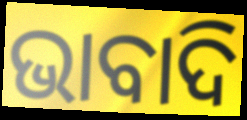
ଭାବାଦି